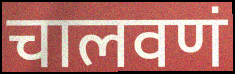
चालवणं